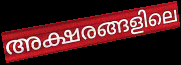
അക്ഷരങ്ങളിലെ